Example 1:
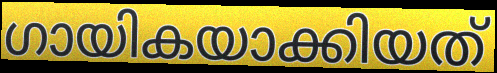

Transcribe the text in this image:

ഗായികയാക്കിയത്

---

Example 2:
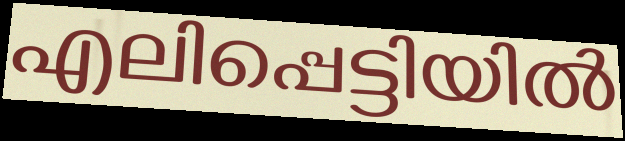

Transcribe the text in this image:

എലിപ്പെട്ടിയിൽ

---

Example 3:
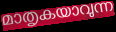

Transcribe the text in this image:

മാതൃകയാവുന്ന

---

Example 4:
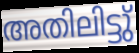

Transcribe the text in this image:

അതിലിട്ടു്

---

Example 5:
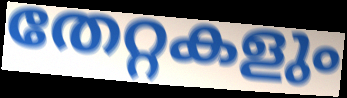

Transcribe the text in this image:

തേറ്റകളും